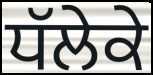
ਧੱਲੇਕੇ